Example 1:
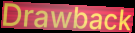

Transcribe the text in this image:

Drawback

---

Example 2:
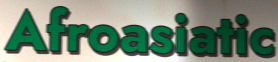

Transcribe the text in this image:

Afroasiatic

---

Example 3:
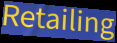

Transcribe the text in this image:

Retailing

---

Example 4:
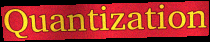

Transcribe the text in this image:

Quantization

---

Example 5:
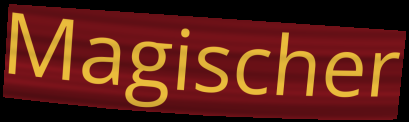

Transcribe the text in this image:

Magischer